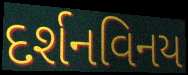
દર્શનવિનય